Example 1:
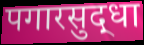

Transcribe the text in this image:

पगारसुद्धा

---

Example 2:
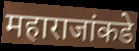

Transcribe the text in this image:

महाराजांकडे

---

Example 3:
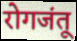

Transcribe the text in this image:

रोगजंतू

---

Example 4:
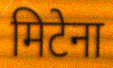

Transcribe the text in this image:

मिटेना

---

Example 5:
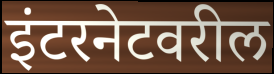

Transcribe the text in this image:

इंटरनेटवरील